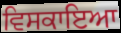
ਵਿਸਕਾਇਆ